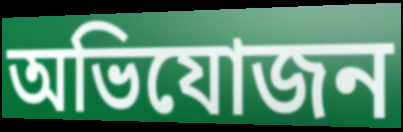
অভিযোজন